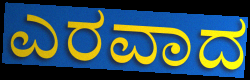
ಎರವಾದ